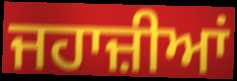
ਜਹਾਜ਼ੀਆਂ